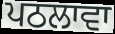
ਪਠਲਾਵਾ